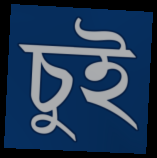
চুই